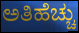
ಅತಿಹೆಚ್ಚು